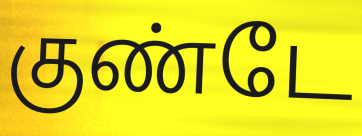
குண்டே